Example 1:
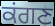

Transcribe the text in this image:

ਕਂਗਣ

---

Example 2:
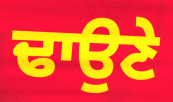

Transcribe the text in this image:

ਢਾਉਣੇ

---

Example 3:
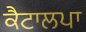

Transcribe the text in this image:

ਕੈਟਾਲਪਾ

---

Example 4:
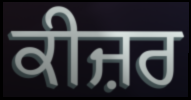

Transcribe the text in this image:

ਕੀਜ਼ਰ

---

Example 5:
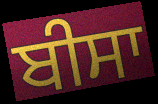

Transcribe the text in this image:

ਬੀਸਾ